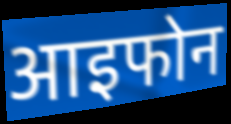
आइफोन